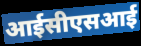
आईसीएसआई